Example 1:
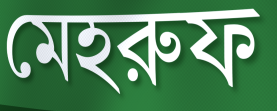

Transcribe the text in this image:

মেহরুফ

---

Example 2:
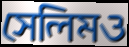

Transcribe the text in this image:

সেলিমও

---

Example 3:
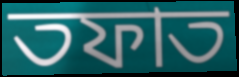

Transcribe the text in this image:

তফাত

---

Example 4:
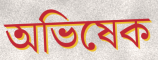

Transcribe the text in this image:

অভিষেক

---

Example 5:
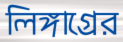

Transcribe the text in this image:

লিঙ্গাগ্রের